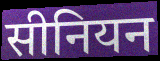
सीनियन